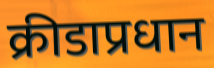
क्रीडाप्रधान